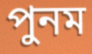
পুনম